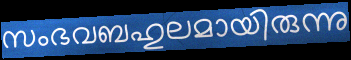
സംഭവബഹുലമായിരുന്നു